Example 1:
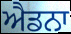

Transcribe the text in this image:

ਐਡਨਾ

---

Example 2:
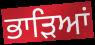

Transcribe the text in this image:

ਭਾੜਿਆਂ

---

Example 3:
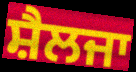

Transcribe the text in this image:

ਸ਼ੈਲਜਾ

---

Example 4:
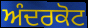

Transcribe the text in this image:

ਅੰਦਰਕੋਟ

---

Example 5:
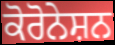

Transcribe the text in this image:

ਕੋਰੋਨੇਸ਼ਨ